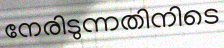
നേരിടുന്നതിനിടെ